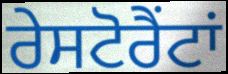
ਰੇਸਟੋਰੈਂਟਾਂ